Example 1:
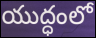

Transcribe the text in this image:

యుద్ధంలో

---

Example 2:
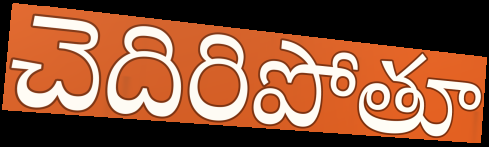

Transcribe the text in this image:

చెదిరిపోతూ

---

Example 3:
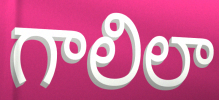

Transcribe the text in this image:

గాలిలా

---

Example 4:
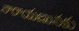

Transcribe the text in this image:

నారాయణునకు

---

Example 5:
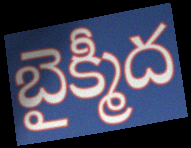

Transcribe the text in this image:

బైక్మీద